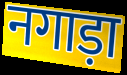
नगाड़ा